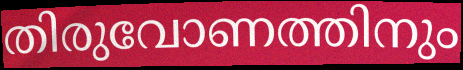
തിരുവോണത്തിനും